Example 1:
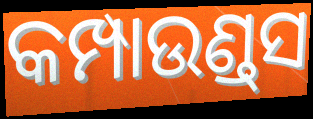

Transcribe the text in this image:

କମ୍ପାଉଣ୍ଡ୍‌ସ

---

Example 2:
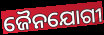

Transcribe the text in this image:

ଜୈନଯୋଗୀ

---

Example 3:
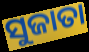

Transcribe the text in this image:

ସୁଜାତା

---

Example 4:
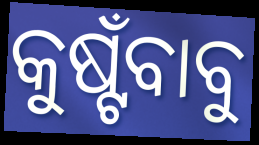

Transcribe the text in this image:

କୁଷ୍ଟଁବାବୁ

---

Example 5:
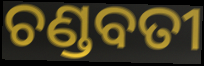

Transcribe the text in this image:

ଚଣ୍ଡବତୀ